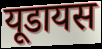
यूडायस